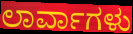
ಲಾರ್ವಾಗಳು